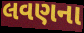
લવણના